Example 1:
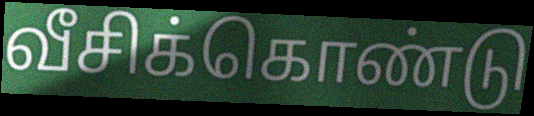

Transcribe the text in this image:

வீசிக்கொண்டு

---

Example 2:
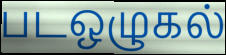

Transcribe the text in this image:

படஒழுகல்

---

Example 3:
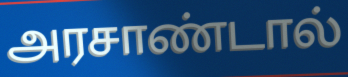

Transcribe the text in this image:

அரசாண்டால்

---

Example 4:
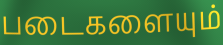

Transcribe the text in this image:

படைகளையும்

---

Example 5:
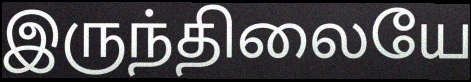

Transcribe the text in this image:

இருந்திலையே